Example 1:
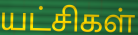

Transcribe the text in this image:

யட்சிகள்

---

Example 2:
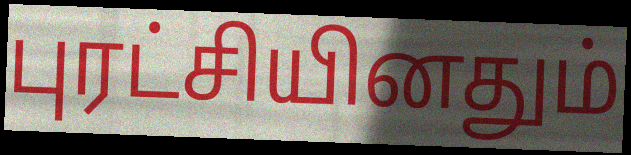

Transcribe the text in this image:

புரட்சியினதும்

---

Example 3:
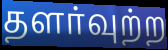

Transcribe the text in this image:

தளர்வுற்ற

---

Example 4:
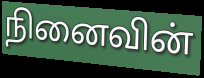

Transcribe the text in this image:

நினைவின்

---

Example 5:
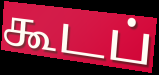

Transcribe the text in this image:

கூடப்